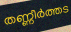
തണ്ണീർത്തട